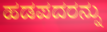
ಹಡಪದರನ್ನು